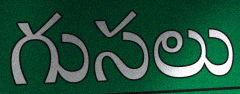
గుసలు